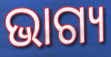
ଭାଗ୍ୟ